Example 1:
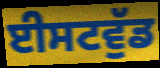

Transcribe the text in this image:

ਈਸਟਵੁੱਡ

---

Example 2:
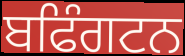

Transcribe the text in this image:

ਬਫਿੰਗਟਨ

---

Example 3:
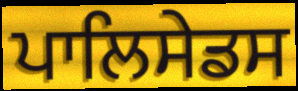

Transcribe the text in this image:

ਪਾਲਿਸੇਡਸ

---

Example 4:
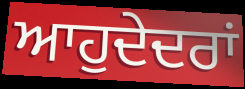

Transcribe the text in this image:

ਆਹੁਦੇਦਰਾਂ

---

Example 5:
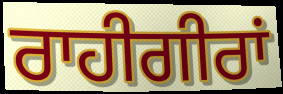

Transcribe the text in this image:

ਰਾਹੀਗੀਰਾਂ